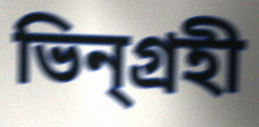
ভিন্গ্রহী